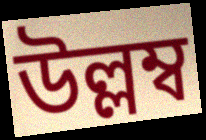
উল্লম্ব